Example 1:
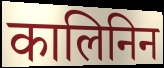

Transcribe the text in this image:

कालिनिन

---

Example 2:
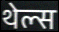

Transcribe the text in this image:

थेल्स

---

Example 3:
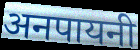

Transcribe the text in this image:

अनपायनी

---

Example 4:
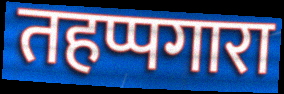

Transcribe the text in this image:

तहप्पगारा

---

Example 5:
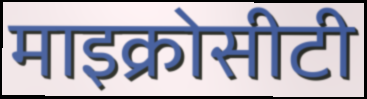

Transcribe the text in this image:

माइक्रोसीटी